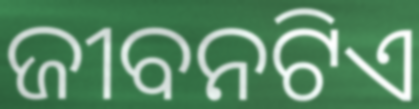
ଜୀବନଟିଏ